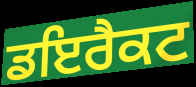
ਡਇਰੈਕਟ